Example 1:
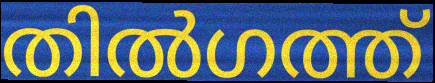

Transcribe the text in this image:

തിൽഗത്ത്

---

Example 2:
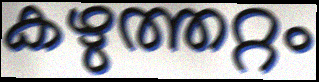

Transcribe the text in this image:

കഴുത്തറ്റം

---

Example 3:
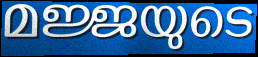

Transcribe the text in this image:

മജ്ജയുടെ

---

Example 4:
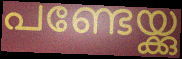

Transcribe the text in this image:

പണ്ടേയ്ക്കു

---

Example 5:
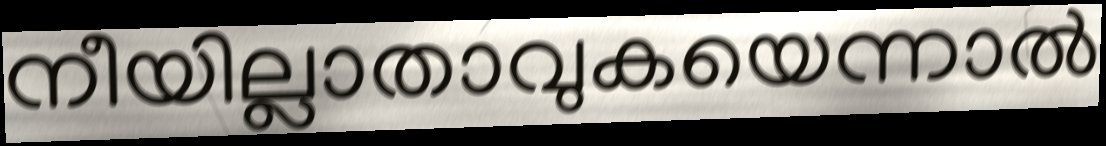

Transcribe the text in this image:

നീയില്ലാതാവുകയെന്നാൽ